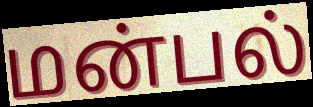
மன்பல்